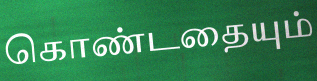
கொண்டதையும்